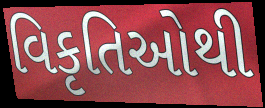
વિકૃતિઓથી